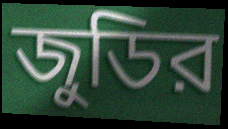
জুডির